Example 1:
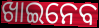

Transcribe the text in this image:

ଖାଇନେବ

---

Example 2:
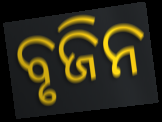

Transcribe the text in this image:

ବୃଜିନ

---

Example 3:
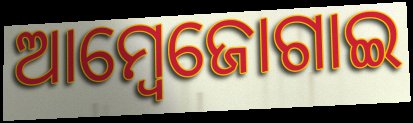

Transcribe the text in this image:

ଆମ୍ବେଜୋଗାଇ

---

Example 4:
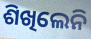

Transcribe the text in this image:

ଶିଖିଲେନି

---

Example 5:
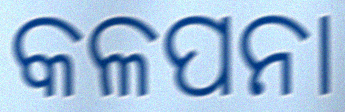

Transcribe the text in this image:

କଳପନା